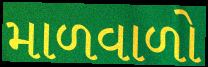
માળવાળો